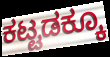
ಕಟ್ಟಡಕ್ಕೂ